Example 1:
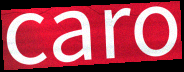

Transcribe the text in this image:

caro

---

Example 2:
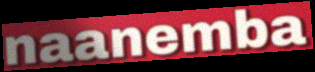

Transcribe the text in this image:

naanemba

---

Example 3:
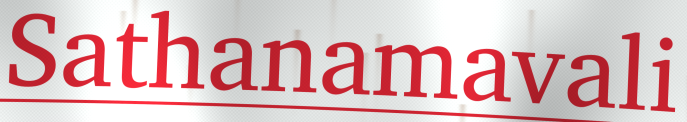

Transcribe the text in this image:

Sathanamavali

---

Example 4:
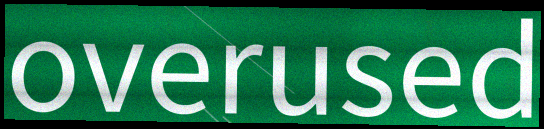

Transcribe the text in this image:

overused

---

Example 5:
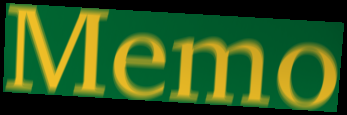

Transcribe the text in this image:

Memo